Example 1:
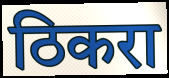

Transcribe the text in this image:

ठिकरा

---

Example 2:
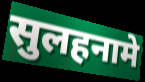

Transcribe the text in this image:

सुलहनामे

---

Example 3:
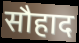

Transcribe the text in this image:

सौहाद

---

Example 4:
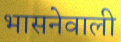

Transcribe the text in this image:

भासनेवाली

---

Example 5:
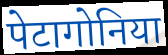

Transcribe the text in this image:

पेटागोनिया